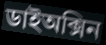
ডাইঅক্সিন